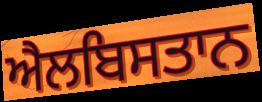
ਐਲਬਿਸਤਾਨ